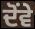
ਦੋਂਵੇ